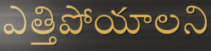
ఎత్తిపోయాలని